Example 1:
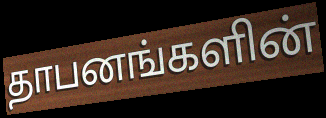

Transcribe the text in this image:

தாபனங்களின்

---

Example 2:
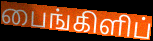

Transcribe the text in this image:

பைங்கிளிப்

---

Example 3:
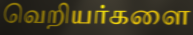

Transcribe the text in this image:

வெறியர்களை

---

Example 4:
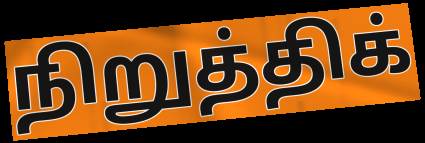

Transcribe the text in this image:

நிறுத்திக்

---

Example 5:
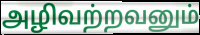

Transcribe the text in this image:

அழிவற்றவனும்